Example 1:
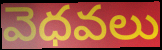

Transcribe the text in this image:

వెధవలు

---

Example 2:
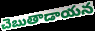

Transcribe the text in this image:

చెబుతాడాయన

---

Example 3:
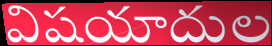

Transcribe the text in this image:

విషయాదుల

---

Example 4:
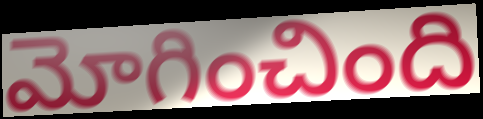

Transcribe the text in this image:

మోగించింది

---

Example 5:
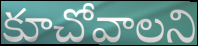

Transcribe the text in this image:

కూచోవాలని